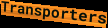
Transporters